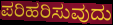
ಪರಿಹರಿಸುವುದು